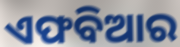
ଏଫବିଆର